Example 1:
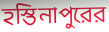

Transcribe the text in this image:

হস্তিনাপুরের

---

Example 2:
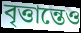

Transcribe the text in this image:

বৃত্তান্তেও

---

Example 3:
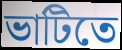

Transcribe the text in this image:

ভাটিতে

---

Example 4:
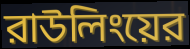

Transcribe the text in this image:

রাউলিংয়ের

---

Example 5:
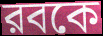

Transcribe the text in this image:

রবকে